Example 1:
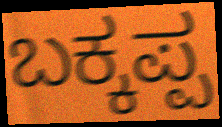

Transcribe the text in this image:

ಬಕ್ಕಪ್ಪ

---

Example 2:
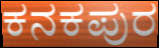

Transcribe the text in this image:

ಕನಕಪುರ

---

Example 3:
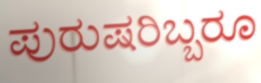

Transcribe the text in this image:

ಪುರುಷರಿಬ್ಬರೂ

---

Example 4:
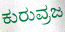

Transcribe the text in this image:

ಕುರುವ್ರಜ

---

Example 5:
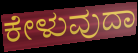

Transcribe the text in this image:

ಕೇಳುವುದಾ